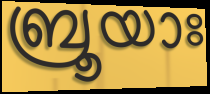
ബ്രൂയാഃ